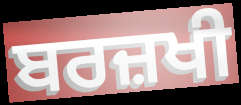
ਬਰਜ਼ਖੀ